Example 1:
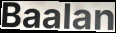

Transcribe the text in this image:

Baalan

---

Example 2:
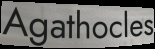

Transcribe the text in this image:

Agathocles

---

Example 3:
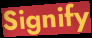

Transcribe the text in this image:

Signify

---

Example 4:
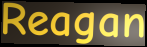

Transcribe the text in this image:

Reagan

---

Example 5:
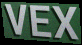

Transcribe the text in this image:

VEX